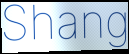
Shang